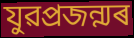
যুৱপ্ৰজন্মৰ